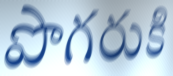
పొగరుకి